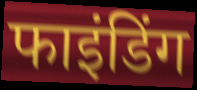
फाइंडिंग